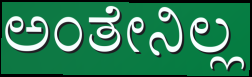
ಅಂತೇನಿಲ್ಲ